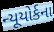
ન્યૂયોર્કના